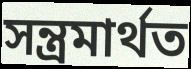
সন্ত্ৰমাৰ্থত